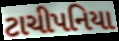
ટાચીપનિયા